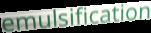
emulsification